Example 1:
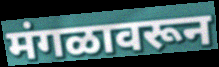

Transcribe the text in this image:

मंगळावरून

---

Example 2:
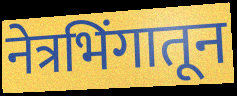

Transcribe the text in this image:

नेत्रभिंगातून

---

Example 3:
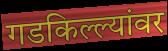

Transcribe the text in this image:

गडकिल्ल्यांवर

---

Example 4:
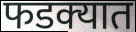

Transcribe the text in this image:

फडक्‍यात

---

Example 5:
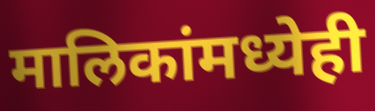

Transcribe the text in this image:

मालिकांमध्येही